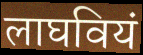
लाघवियं